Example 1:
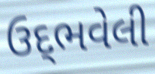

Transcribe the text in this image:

ઉદ્‌ભવેલી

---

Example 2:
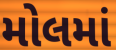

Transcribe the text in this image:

મોલમાં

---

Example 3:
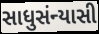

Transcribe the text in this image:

સાધુસંન્યાસી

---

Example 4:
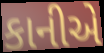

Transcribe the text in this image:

કાનીએ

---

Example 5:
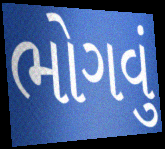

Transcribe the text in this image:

ભોગવું